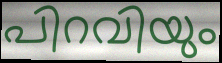
പിറവിയും